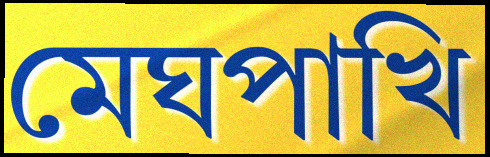
মেঘপাখি